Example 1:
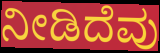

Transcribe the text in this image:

ನೀಡಿದೆವು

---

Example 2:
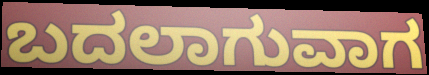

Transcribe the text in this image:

ಬದಲಾಗುವಾಗ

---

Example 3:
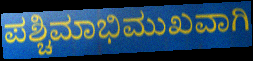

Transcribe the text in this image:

ಪಶ್ಚಿಮಾಭಿಮುಖವಾಗಿ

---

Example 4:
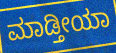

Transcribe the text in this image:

ಮಾಡ್ತೀಯಾ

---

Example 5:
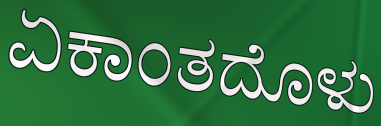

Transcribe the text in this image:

ಏಕಾಂತದೊಳು